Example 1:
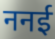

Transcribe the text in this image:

ननई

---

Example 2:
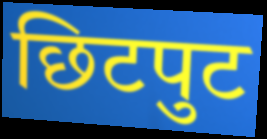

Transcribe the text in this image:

छिटपुट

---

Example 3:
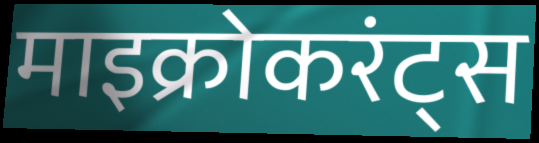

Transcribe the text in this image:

माइक्रोकरंट्स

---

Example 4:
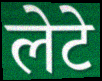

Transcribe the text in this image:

लेटे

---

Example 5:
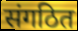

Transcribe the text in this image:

संगठित